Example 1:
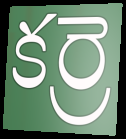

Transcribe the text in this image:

కర్రె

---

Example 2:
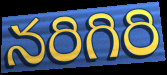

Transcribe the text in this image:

నరిగిరి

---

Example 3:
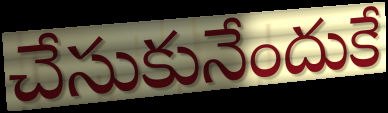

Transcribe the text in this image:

చేసుకునేందుకే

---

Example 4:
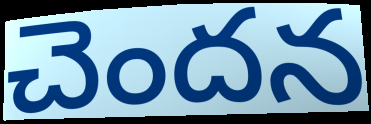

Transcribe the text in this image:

చెందన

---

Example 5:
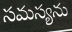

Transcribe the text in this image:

సమస్యను